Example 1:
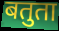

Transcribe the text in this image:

बतुता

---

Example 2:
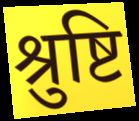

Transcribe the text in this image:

श्रुष्टि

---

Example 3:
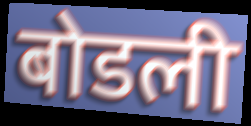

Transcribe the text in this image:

बोडली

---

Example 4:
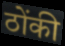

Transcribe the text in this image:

ठोंकी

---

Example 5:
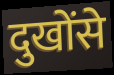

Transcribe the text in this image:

दुखोंसे